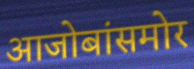
आजोबांसमोर